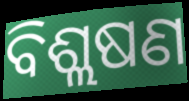
ବିଶ୍ଲଷଣ